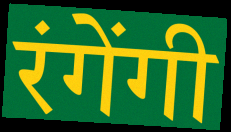
रंगेंगी